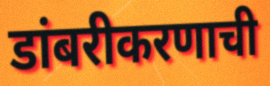
डांबरीकरणाची